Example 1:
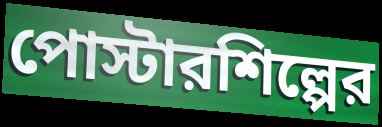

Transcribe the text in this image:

পোস্টারশিল্পের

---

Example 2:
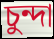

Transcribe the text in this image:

চুন্দা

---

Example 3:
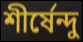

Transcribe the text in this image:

শীর্ষেন্দু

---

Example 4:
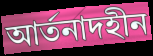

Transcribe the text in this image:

আর্তনাদহীন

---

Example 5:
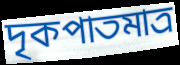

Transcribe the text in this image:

দৃকপাতমাত্র